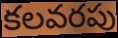
కలవరపు